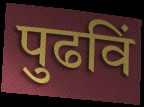
पुढविं